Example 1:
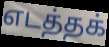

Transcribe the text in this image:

எடத்தக்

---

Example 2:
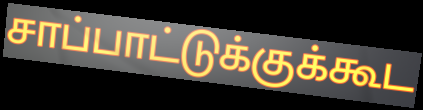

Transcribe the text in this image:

சாப்பாட்டுக்குக்கூட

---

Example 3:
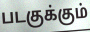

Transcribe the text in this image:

படகுக்கும்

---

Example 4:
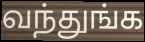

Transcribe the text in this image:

வந்துங்க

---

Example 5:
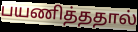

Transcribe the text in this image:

பயணித்ததால்